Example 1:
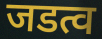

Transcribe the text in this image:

जडत्व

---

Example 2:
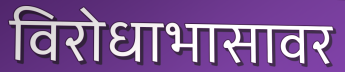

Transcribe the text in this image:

विरोधाभासावर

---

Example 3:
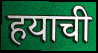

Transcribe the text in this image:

हयाची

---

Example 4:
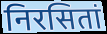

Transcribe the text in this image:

निरसितां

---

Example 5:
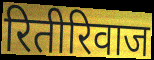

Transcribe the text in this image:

रितीरिवाज